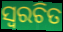
ସ୍ୱରଚିତ